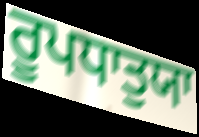
ਰੂਪਧਾਤੁਯਾ